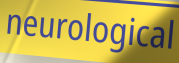
neurological